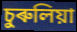
চুৰুলিয়া